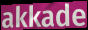
akkade